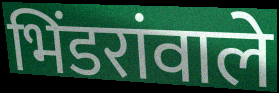
भिंडरांवाले